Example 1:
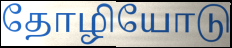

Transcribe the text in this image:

தோழியோடு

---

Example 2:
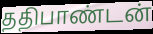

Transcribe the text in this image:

ததிபாண்டன்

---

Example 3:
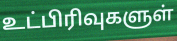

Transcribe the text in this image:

உட்பிரிவுகளுள்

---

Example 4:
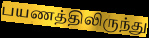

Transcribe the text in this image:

பயணத்திலிருந்து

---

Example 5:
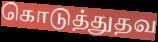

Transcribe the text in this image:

கொடுத்துதவ